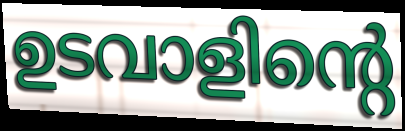
ഉടവാളിന്റെ